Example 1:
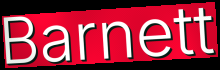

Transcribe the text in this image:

Barnett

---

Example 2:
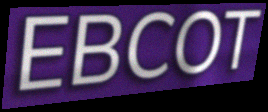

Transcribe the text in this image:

EBCOT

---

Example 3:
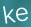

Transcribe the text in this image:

ke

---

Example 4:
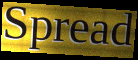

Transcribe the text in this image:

Spread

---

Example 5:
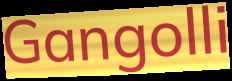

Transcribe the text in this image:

Gangolli